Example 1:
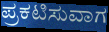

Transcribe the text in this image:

ಪ್ರಕಟಿಸುವಾಗ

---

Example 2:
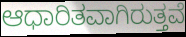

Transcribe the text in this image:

ಆಧಾರಿತವಾಗಿರುತ್ತವೆ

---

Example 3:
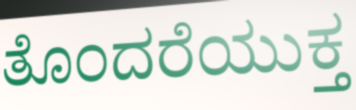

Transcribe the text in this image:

ತೊಂದರೆಯುಕ್ತ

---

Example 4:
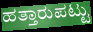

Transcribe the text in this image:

ಹತ್ತಾರುಪಟ್ಟು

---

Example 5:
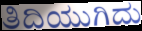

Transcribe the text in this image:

ತಿದಿಯುಗಿದು